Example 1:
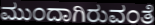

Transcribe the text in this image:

ಮುಂದಾಗಿರುವಂತೆ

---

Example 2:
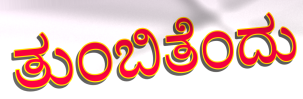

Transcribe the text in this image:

ತುಂಬಿತೆಂದು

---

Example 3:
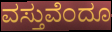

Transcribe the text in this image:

ವಸ್ತುವೆಂದೂ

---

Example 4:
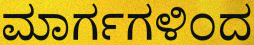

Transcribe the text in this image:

ಮಾರ್ಗಗಳಿಂದ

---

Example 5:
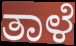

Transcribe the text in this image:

ತಾಳೆ